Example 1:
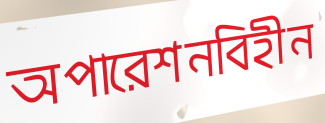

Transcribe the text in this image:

অপারেশনবিহীন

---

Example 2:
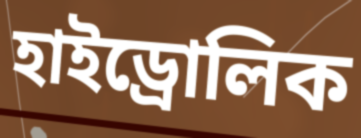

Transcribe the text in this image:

হাইড্রোলিক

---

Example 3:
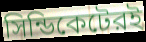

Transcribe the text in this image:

সিন্ডিকেটেরই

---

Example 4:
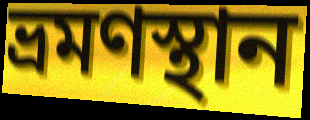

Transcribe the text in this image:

ভ্রমণস্থান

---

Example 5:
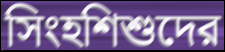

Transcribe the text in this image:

সিংহশিশুদের